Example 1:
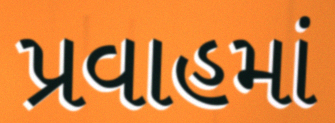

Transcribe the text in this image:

પ્રવાહમાં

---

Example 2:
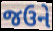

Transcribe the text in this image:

જઉને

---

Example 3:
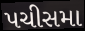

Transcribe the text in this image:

પચીસમા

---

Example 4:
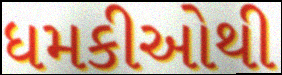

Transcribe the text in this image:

ધમકીઓથી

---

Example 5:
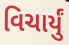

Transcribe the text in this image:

વિચાર્યું